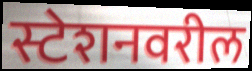
स्टेशनवरील